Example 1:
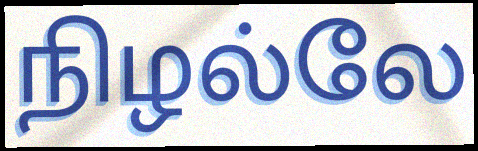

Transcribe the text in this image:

நிழல்லே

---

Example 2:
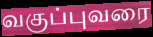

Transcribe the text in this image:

வகுப்புவரை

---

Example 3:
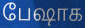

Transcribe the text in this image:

பேஷாக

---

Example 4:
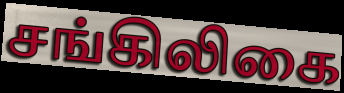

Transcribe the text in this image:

சங்கிலிகை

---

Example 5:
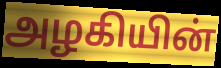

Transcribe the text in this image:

அழகியின்